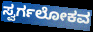
ಸ್ವರ್ಗಲೋಕವ